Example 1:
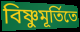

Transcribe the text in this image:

বিষ্ণুমূর্তিতে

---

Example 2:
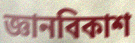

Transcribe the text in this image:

জ্ঞানবিকাশ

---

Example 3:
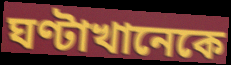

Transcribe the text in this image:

ঘণ্টাখানেকে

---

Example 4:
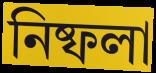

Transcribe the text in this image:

নিষ্ফলা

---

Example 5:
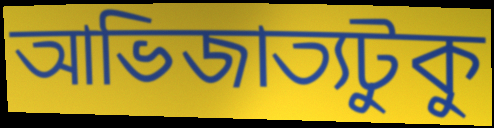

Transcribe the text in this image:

আভিজাত্যটুকু